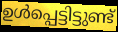
ഉൾപ്പെട്ടിട്ടുണ്ട്